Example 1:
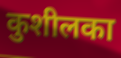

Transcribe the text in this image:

कुशीलका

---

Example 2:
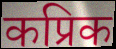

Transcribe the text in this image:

कप्रिक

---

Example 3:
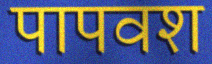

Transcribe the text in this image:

पापवश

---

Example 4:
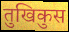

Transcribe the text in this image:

तुखिकुस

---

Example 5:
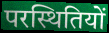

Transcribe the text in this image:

परस्थितियों